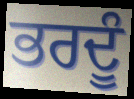
ਭਰਦੂੰ